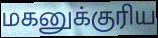
மகனுக்குரிய